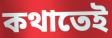
কথাতেই